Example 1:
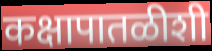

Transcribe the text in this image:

कक्षापातळीशी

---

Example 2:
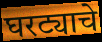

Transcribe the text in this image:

घरट्याचे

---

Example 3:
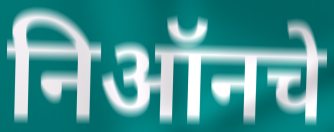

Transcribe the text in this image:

निऑनचे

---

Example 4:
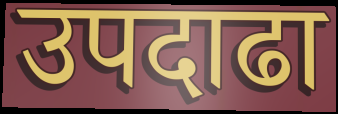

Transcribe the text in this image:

उपदाढा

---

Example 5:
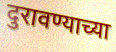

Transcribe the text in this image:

दुरावण्याच्या